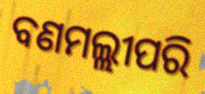
ବଣମଲ୍ଲୀପରି